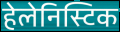
हेलेनिस्टिक